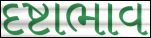
દષ્ટાભાવ